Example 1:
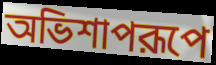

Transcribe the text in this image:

অভিশাপরূপে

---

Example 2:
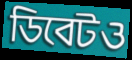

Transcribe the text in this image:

ডিবেটও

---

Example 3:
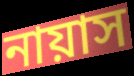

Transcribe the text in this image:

নায়াস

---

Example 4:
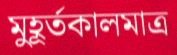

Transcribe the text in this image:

মুহূর্তকালমাত্র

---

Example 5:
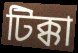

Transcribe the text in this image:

টিক্কা